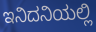
ಇನಿದನಿಯಲ್ಲಿ